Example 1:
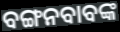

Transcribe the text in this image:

ବଙ୍ଗନବାବଙ୍କ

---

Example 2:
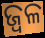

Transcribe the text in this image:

ଜ୍ୱଳ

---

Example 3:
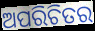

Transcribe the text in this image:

ଅପରିଚିତର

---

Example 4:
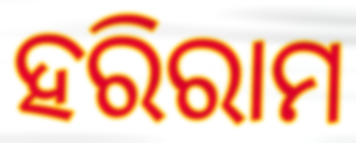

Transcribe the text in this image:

ହରିରାମ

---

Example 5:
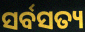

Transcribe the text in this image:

ସର୍ବସତ୍ୟ